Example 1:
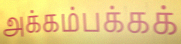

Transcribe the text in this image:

அக்கம்பக்கக்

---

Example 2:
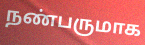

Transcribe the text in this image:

நண்பருமாக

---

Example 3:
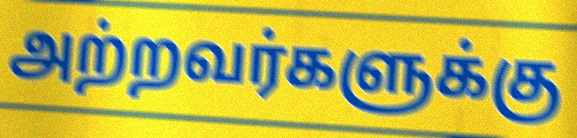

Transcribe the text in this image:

அற்றவர்களுக்கு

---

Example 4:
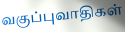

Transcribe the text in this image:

வகுப்புவாதிகள்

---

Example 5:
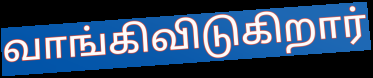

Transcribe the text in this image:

வாங்கிவிடுகிறார்